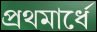
প্রথমার্ধে